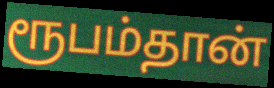
ரூபம்தான்